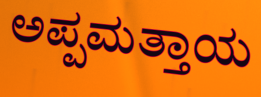
ಅಪ್ಪಮತ್ತಾಯ